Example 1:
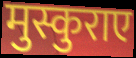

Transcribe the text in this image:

मुस्कुराए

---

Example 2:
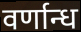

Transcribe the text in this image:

वर्णान्ध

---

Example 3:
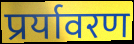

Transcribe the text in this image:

प्रर्यावरण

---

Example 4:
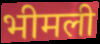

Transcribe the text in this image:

भीमली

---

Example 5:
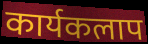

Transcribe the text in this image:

कार्यकलाप